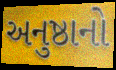
અનુષ્ઠાનો